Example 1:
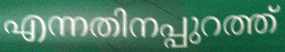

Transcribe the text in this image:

എന്നതിനപ്പുറത്ത്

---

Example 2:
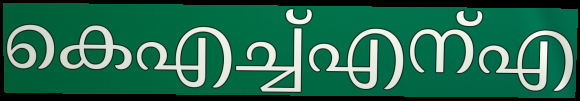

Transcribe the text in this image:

കെഎച്ച്എന്എ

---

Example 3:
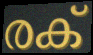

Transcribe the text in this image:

രക്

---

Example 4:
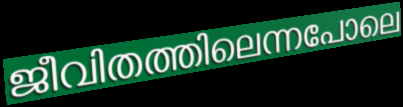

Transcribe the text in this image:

ജീവിതത്തിലെന്നപോലെ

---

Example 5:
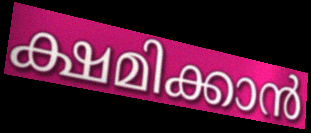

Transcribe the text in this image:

ക്ഷമിക്കാൻ